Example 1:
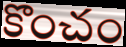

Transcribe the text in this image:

కొంచం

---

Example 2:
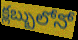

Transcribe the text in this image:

క్లబ్బులోనో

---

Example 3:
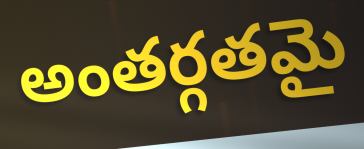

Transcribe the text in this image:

అంతర్గతమై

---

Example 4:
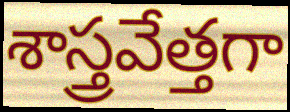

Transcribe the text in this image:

శాస్త్రవేత్తగా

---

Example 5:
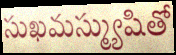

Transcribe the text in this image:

సుఖమస్మ్యుషితో